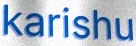
karishu